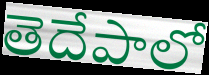
తెదేపాలో